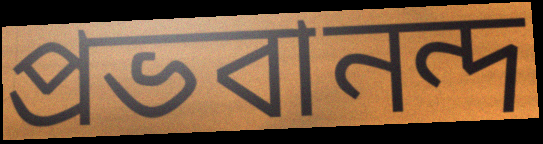
প্রভবানন্দ